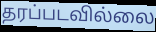
தரப்படவில்லை